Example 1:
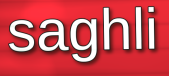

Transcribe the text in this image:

saghli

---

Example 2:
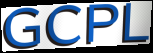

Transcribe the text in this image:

GCPL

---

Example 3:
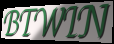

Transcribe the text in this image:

BTWIN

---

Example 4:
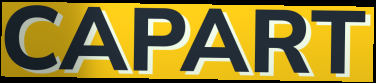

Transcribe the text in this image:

CAPART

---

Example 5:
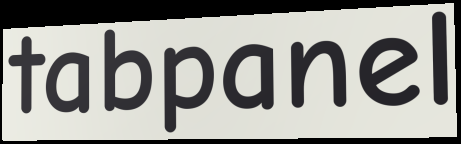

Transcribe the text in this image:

tabpanel